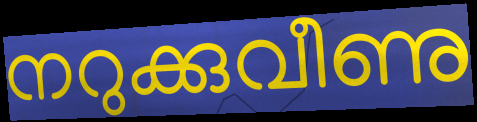
നറുക്കുവീണു